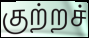
குற்றச்